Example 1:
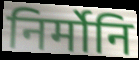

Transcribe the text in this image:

निर्मोनि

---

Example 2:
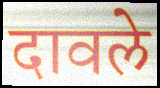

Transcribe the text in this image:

दावले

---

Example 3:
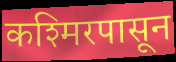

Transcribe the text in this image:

कश्मिरपासून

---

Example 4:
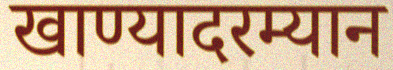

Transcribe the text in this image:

खाण्यादरम्यान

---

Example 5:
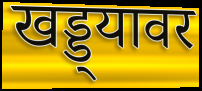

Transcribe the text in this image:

खड्ड्यावर